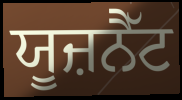
ਯੂਜ਼ਨੈੱਟ